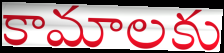
కామాలకు